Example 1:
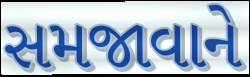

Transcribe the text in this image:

સમજાવાને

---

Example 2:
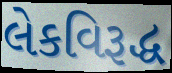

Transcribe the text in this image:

લેકવિરૂદ્ધ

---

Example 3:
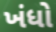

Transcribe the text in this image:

ખંધો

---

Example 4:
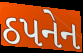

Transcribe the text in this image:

ઠપનેન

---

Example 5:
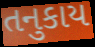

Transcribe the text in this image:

તનુકાય